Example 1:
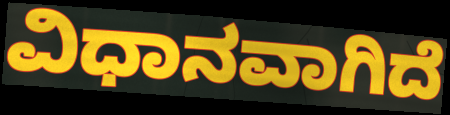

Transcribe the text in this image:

ವಿಧಾನವಾಗಿದೆ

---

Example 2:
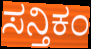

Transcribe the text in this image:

ಸನ್ತಿಕಂ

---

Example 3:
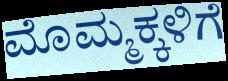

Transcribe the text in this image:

ಮೊಮ್ಮಕ್ಕಳಿಗೆ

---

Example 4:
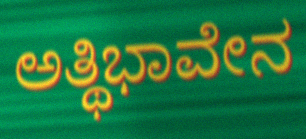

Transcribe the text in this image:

ಅತ್ಥಿಭಾವೇನ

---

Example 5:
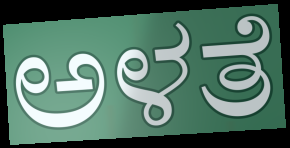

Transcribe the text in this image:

ಅಳತೆ